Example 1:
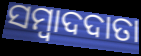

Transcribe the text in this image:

ସମ୍ବାଦଦାତା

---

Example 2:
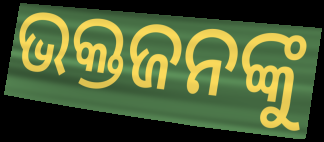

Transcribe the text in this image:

ଭକ୍ତଜନଙ୍କୁ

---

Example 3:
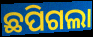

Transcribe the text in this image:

ଛପିଗଲା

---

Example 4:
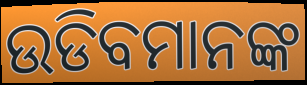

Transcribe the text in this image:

ଉଡିବମାନଙ୍କ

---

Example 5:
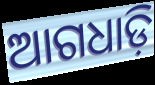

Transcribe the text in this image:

ଆଗଧାଡ଼ି